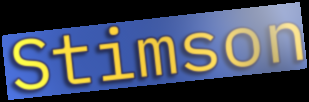
Stimson